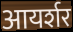
आयर्शर